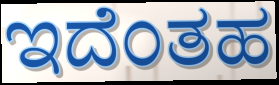
ಇದೆಂತಹ